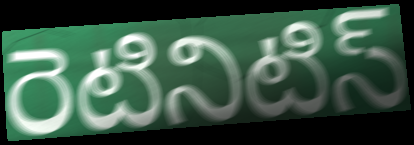
రెటినిటిస్